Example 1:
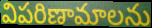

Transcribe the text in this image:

విపరిణామాలను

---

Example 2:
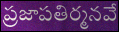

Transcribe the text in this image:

ప్రజాపతిర్మనవే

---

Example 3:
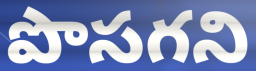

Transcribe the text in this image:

పొసగని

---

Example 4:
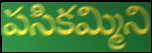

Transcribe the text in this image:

పసికమ్మిని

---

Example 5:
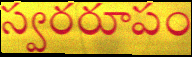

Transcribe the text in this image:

స్వరరూపం